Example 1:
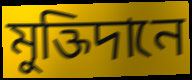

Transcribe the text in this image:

মুক্তিদানে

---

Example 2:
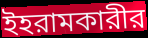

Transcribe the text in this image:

ইহরামকারীর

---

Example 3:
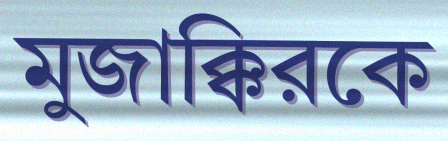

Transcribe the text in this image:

মুজাক্কিরকে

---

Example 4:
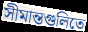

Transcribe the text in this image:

সীমান্তগুলিতে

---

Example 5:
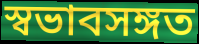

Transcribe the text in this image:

স্বভাবসঙ্গত